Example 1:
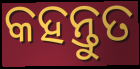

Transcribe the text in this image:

କହନ୍ତୁତ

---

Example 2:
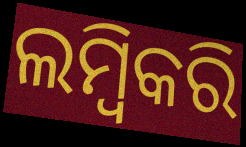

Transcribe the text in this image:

ଲମ୍ବିକରି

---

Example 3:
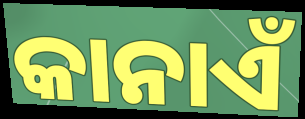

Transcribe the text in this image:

କାନାଏଁ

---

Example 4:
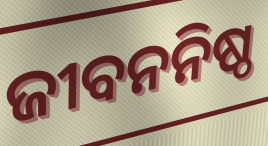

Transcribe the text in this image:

ଜୀବନନିଷ୍ଠ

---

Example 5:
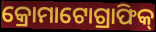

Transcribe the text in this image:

କ୍ରୋମାଟୋଗ୍ରାଫିକ୍